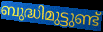
ബുദ്ധിമുട്ടുണ്ട്